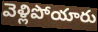
వెళ్లిపోయారు